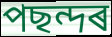
পছন্দৰ